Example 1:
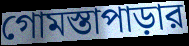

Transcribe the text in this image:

গোমস্তাপাড়ার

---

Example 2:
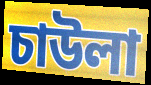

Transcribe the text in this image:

চাউলা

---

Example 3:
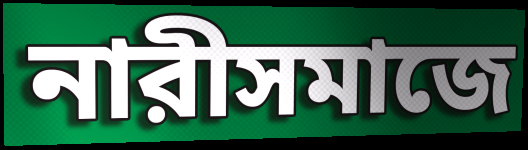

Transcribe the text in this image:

নারীসমাজে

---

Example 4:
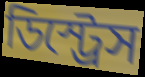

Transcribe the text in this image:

ডিস্ট্রেস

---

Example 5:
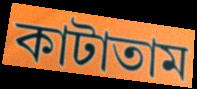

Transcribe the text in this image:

কাটাতাম